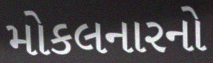
મોકલનારનો